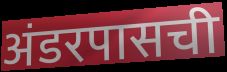
अंडरपासची